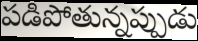
పడిపోతున్నప్పుడు